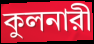
কুলনারী